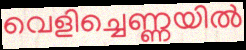
വെളിച്ചെണ്ണയിൽ